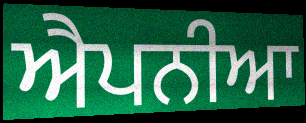
ਐਪਨੀਆ